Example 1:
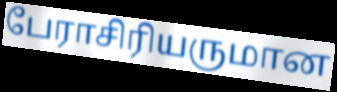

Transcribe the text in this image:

பேராசிரியருமான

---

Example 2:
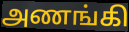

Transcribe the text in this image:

அணங்கி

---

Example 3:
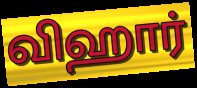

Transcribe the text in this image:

விஹார்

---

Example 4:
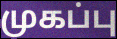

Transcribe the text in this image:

முகப்பு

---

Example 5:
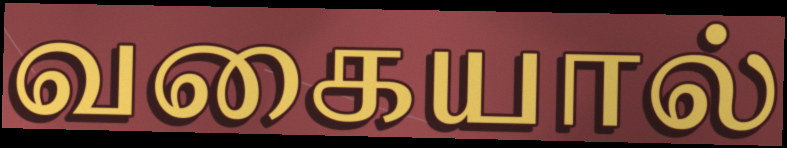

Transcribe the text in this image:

வகையால்